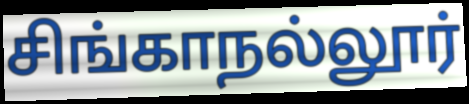
சிங்காநல்லூர்